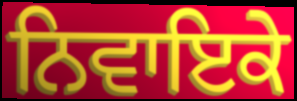
ਨਿਵਾਇਕੇ